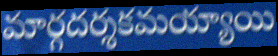
మార్గదర్శకమయ్యాయి